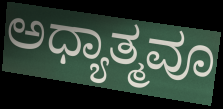
ಅಧ್ಯಾತ್ಮವೂ